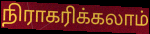
நிராகரிக்கலாம்